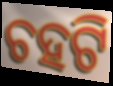
ଚହଟି